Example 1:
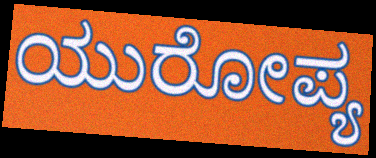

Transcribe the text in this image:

ಯುರೋಪ್ಯ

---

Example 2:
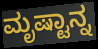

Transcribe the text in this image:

ಮೃಷ್ಟಾನ್ನ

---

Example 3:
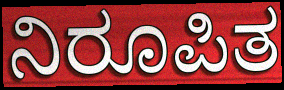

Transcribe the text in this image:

ನಿರೂಪಿತ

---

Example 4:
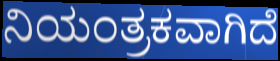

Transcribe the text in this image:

ನಿಯಂತ್ರಕವಾಗಿದೆ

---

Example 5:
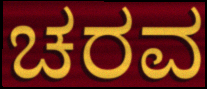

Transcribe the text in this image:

ಚರವ